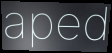
aped